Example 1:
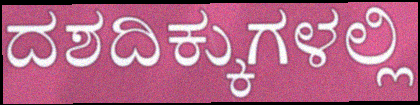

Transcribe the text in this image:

ದಶದಿಕ್ಕುಗಳಲ್ಲಿ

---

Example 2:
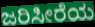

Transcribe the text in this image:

ಜರಿಸೀರೆಯ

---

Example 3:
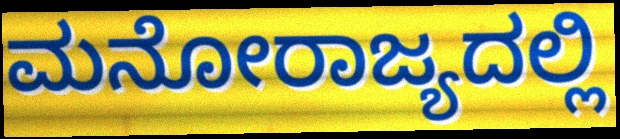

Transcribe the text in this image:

ಮನೋರಾಜ್ಯದಲ್ಲಿ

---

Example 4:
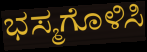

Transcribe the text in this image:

ಭಸ್ಮಗೊಳಿಸಿ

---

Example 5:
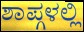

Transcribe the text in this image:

ಶಾಪ್ಗಳಲ್ಲಿ